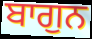
ਬਾਗੁਨ